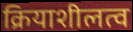
क्रियाशीलत्व